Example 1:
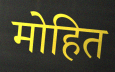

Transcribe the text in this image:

मोहित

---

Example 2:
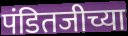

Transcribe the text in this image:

पंडितजीच्या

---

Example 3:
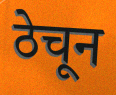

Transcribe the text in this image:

ठेचून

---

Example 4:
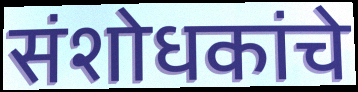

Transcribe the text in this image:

संशोधकांचे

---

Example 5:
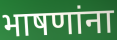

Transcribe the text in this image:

भाषणांना